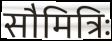
सौमित्रिः